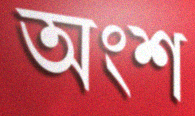
অংশ